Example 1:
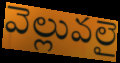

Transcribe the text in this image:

వెల్లువలై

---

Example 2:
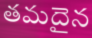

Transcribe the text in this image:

తమదైన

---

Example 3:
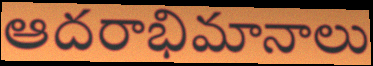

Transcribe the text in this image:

ఆదరాభిమానాలు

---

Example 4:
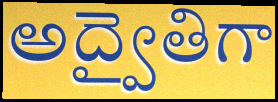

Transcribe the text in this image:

అద్వైతిగా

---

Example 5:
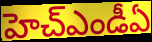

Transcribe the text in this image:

హెచ్ఎండీఏ